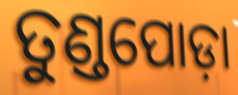
ତୁଣ୍ଡପୋଡ଼ା